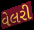
વેલરી